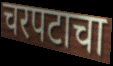
चरपटाचा